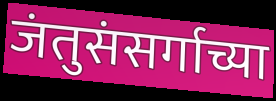
जंतुसंसर्गाच्या